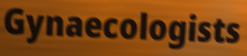
Gynaecologists